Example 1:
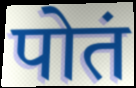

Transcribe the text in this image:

पोतं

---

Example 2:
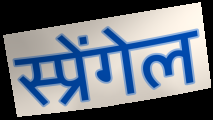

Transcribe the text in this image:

स्प्रेंगेल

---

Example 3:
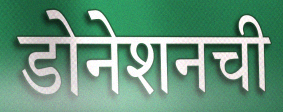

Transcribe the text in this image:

डोनेशनची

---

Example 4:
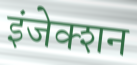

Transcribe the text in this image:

इंजेक्शन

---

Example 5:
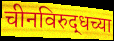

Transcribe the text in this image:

चीनविरुद्धच्या